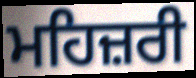
ਮਹਿਜ਼ਰੀ